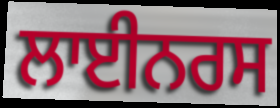
ਲਾਈਨਰਸ